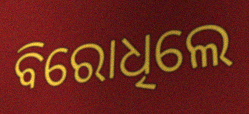
ବିରୋଧିଲେ